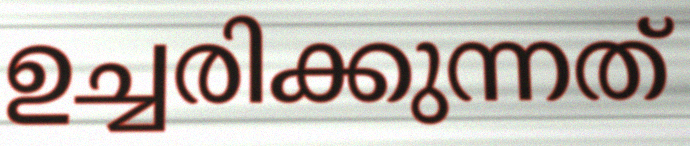
ഉച്ചരിക്കുന്നത്